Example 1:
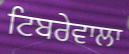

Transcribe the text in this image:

ਟਿਬਰੇਵਾਲਾ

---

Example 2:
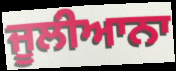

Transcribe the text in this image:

ਜੂਲੀਆਨਾ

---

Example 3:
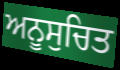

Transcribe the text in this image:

ਅਨੂਸੁਚਿਤ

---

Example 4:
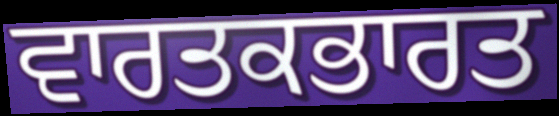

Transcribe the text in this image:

ਵਾਰਤਕਭਾਰਤ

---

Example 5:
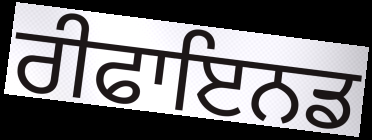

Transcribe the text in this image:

ਰੀਫਾਇਨਡ